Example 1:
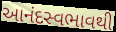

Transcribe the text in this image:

આનંદસ્વભાવથી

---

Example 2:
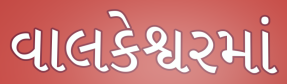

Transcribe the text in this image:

વાલકેશ્વરમાં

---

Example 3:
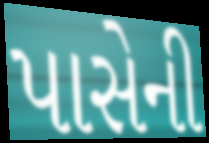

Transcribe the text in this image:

પાસેની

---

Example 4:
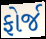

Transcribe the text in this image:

ફોર્જ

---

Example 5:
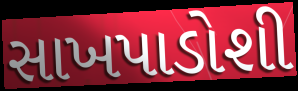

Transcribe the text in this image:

સાખપાડોશી